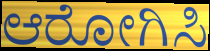
ಆರೋಗಿಸಿ